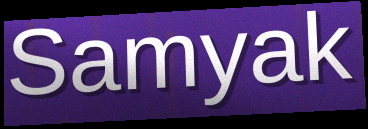
Samyak